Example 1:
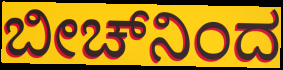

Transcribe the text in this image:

ಬೀಚ್‌ನಿಂದ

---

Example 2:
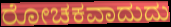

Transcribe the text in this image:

ರೋಚಕವಾದುದು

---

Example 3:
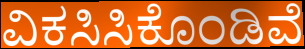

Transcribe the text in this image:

ವಿಕಸಿಸಿಕೊಂಡಿವೆ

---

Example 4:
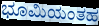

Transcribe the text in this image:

ಭೂಮಿಯಂತಹ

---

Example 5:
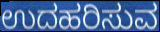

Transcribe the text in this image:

ಉದಹರಿಸುವ